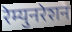
रेम्युनरेशन